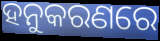
ହନୁକରଣରେ